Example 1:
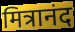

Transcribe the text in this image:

मित्रानंद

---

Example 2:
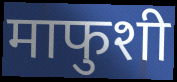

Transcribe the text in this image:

माफुशी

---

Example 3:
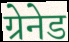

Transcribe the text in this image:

ग्रेनेड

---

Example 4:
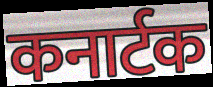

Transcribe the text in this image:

कनार्टक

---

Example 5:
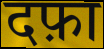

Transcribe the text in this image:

दफ़ा